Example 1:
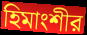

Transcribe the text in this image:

হিমাংশীর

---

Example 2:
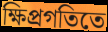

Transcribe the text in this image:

ক্ষিপ্রগতিতে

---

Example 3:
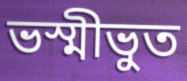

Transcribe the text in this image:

ভস্মীভুত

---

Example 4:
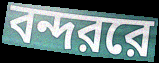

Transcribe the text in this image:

বন্দররে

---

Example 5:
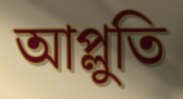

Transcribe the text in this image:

আপ্লুতি